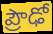
ప్రౌఢో